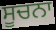
ਸੂਚਨਾ